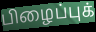
பிழைப்புக்